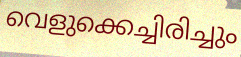
വെളുക്കെച്ചിരിച്ചും